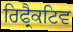
ਰਿਫ੍ਰੈਕਟਿਵ